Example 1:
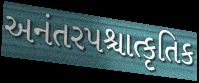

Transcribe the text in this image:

અનંતરપશ્ચાત્કૃતિક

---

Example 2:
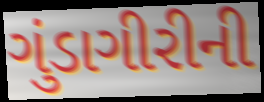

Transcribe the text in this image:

ગુંડાગીરીની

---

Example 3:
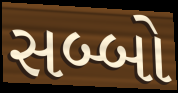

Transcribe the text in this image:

સબ્બો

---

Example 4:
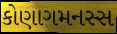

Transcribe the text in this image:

કોણાગમનસ્સ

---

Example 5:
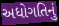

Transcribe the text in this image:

અધોગતિનું